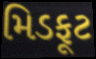
મિડફૂટ